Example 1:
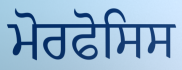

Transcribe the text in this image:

ਮੋਰਫੋਸਿਸ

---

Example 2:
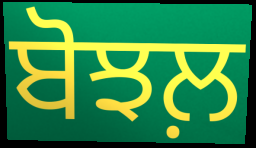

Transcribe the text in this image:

ਬੋਝਲ਼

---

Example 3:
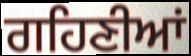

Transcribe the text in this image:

ਗਹਿਣੀਆਂ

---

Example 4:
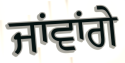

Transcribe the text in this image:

ਜਾਂਵਾਂਗੇ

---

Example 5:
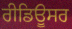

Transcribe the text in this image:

ਰੀਡਿਊਸਰ